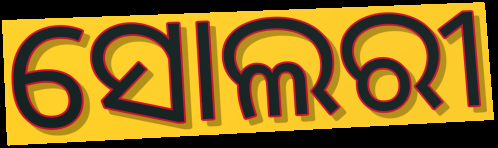
ସୋଲରୀ